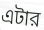
এটার